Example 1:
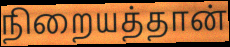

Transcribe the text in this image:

நிறையத்தான்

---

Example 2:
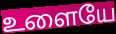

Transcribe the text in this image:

உளையே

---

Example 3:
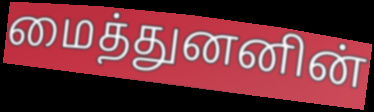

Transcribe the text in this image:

மைத்துனனின்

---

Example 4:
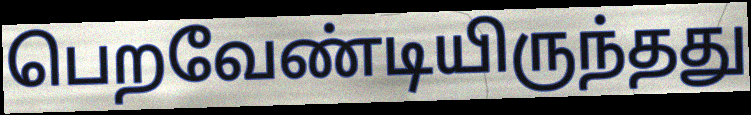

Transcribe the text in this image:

பெறவேண்டியிருந்தது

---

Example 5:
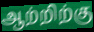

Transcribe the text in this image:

ஆற்றிற்கு